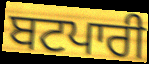
ਬਟਪਾਰੀ